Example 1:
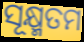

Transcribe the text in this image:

ସୂକ୍ଷ୍ମତମ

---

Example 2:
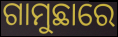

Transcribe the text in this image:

ଗାମୁଛାରେ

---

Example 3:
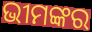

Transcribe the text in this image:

ଭୀମଙ୍କର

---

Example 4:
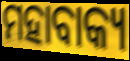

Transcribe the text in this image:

ମହାବାକ୍ୟ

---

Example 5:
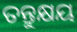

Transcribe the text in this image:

ତନ୍ତୁକ୍ଷୟ